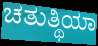
ಚತುತ್ಥಿಯಾ